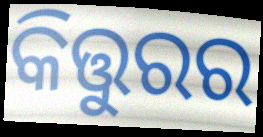
କିତ୍ତୁରର